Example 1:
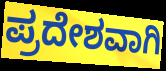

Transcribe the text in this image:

ಪ್ರದೇಶವಾಗಿ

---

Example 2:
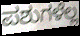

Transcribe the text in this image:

ಪಶುಗಳೆಲ್ಲ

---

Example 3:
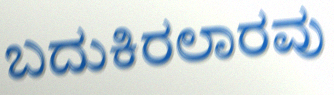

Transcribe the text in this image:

ಬದುಕಿರಲಾರವು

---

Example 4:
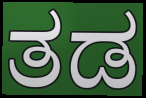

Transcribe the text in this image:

ತಡ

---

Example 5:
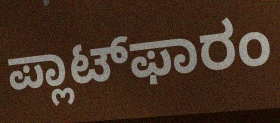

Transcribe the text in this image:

ಪ್ಲಾಟ್‌ಫಾರಂ